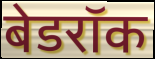
बेडरॉक